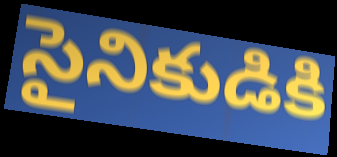
సైనికుడికి